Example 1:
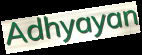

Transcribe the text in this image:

Adhyayan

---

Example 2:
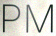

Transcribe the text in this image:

PM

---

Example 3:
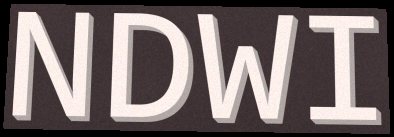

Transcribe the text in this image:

NDWI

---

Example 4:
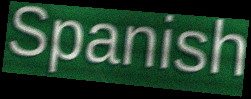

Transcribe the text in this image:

Spanish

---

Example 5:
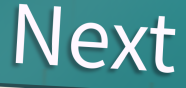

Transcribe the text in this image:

Next